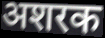
अशरक